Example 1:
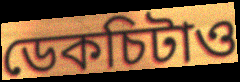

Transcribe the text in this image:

ডেকচিটাও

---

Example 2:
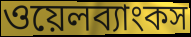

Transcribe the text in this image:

ওয়েলব্যাংকস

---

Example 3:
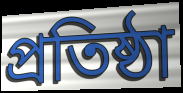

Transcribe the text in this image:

প্রতিষ্ঠা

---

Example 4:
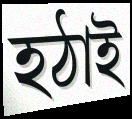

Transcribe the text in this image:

হঠাই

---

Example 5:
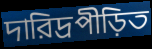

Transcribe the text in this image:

দারিদ্রপীড়িত